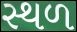
સ્થળ